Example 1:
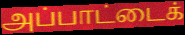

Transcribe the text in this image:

அப்பாட்டைக்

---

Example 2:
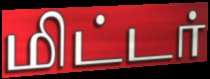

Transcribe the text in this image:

மிட்டர்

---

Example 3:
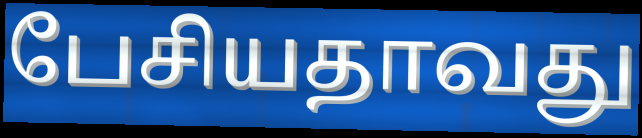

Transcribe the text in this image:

பேசியதாவது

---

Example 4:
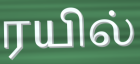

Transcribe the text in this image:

ரயில்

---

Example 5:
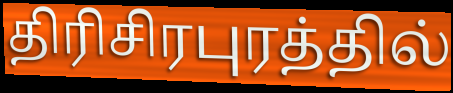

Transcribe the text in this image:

திரிசிரபுரத்தில்